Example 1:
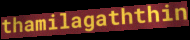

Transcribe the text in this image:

thamilagaththin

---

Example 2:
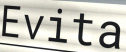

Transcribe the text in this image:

Evita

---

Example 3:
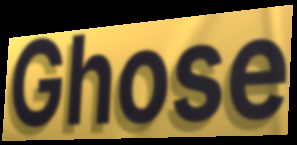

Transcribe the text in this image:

Ghose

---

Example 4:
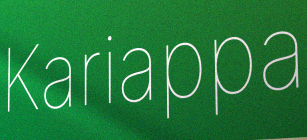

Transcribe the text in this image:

Kariappa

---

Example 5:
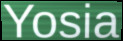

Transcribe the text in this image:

Yosia